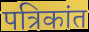
पत्रिकांत